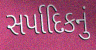
સર્પાદિકનું